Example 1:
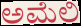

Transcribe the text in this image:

ಅಮೆಲಿ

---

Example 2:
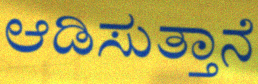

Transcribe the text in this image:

ಆಡಿಸುತ್ತಾನೆ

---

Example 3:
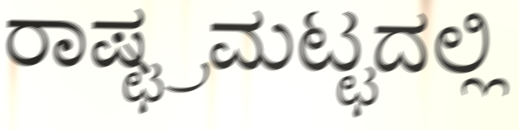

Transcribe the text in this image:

ರಾಷ್ಟ್ರಮಟ್ಟದಲ್ಲಿ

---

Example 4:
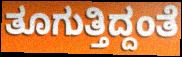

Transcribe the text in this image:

ತೂಗುತ್ತಿದ್ದಂತೆ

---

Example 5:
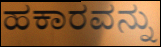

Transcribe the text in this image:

ಹಕಾರವನ್ನು